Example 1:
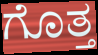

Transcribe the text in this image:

ಗೊತ್ತ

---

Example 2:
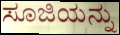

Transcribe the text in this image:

ಸೂಜಿಯನ್ನು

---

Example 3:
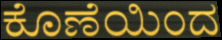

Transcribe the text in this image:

ಕೊಣೆಯಿಂದ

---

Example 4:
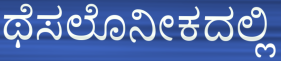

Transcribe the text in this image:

ಥೆಸಲೊನೀಕದಲ್ಲಿ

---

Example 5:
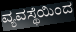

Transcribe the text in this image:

ವ್ಯವಸ್ಥೆಯಿಂದ